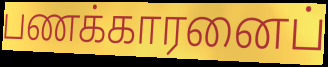
பணக்காரனைப்